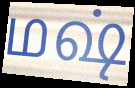
மஷ்